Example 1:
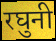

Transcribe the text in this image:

रघुनी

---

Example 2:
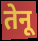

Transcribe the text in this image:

तेनू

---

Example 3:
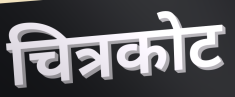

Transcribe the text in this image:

चित्रकोट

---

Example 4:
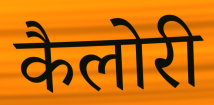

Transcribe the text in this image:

कैलोरी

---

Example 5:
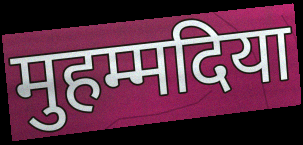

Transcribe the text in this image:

मुहम्मदिया